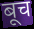
बूच